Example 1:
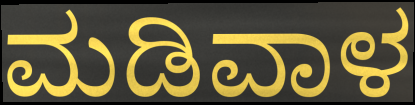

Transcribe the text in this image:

ಮಡಿವಾಳ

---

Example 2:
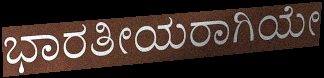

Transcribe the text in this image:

ಭಾರತೀಯರಾಗಿಯೇ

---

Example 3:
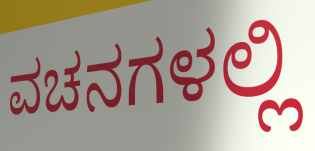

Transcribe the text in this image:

ವಚನಗಳಲ್ಲಿ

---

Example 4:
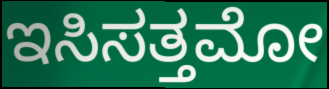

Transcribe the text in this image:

ಇಸಿಸತ್ತಮೋ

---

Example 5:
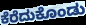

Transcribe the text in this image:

ಕೆರೆದುಕೊಂಡು